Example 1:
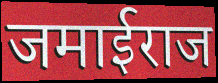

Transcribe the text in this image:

जमाईराज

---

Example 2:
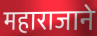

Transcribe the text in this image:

महाराजाने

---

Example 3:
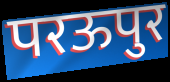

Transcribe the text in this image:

परऊपुर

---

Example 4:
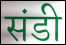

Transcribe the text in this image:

संडी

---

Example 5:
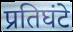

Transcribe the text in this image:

प्रतिघंटे